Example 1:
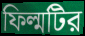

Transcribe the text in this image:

ফিল্মটির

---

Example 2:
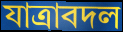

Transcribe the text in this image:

যাত্রাবদল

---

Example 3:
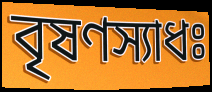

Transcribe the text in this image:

বৃষণস্যাধঃ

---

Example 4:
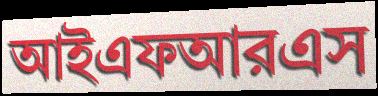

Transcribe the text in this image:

আইএফআরএস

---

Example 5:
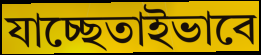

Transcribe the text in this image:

যাচ্ছেতাইভাবে